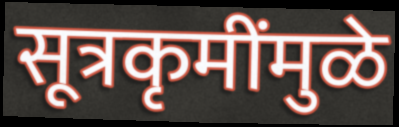
सूत्रकृमींमुळे